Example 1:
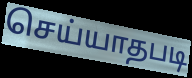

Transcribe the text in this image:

செய்யாதபடி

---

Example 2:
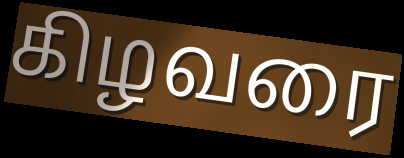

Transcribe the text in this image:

கிழவரை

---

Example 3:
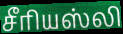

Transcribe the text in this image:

சீரியஸ்லி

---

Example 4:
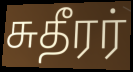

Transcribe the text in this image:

சுதீரர்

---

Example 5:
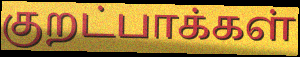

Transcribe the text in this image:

குறட்பாக்கள்